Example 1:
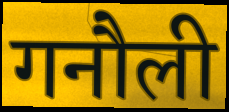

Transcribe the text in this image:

गनौली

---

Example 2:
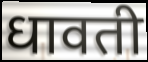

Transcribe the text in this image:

धावती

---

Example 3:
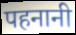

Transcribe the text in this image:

पहनानी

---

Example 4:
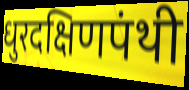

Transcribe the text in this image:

धुरदक्षिणपंथी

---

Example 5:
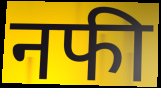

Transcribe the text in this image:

नफी